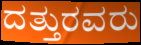
ದತ್ತುರವರು